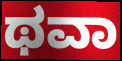
ಥವಾ